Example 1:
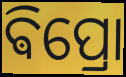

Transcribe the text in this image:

ଵିପ୍ରୋ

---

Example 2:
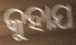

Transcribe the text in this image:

କୁହାଯ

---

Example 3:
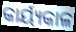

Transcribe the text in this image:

କାର୍ୟ୍ୟକାଳ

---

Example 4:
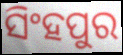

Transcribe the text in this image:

ସିଂହପୁର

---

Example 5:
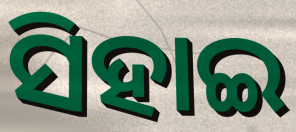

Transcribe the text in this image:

ସିହାଇ